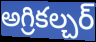
అగ్రికల్చర్